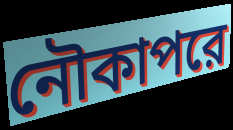
নৌকাপরে